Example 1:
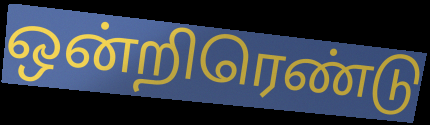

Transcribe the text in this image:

ஒன்றிரெண்டு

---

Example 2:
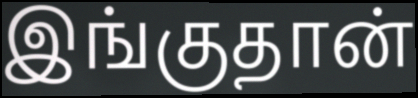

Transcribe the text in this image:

இங்குதான்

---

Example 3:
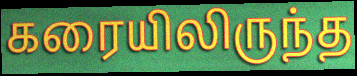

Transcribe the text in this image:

கரையிலிருந்த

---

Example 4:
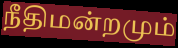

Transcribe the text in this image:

நீதிமன்றமும்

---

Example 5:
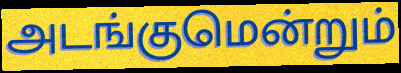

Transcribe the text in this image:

அடங்குமென்றும்